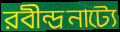
রবীন্দ্রনাট্যে